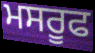
ਮਸਰੂਫ